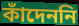
কাঁদেননি